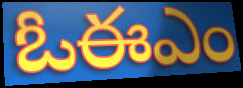
ఓఈఎం